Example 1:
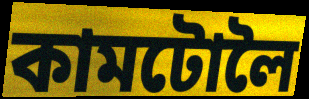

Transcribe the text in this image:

কামটোলৈ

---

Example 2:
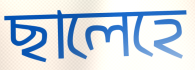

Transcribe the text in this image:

ছালেহে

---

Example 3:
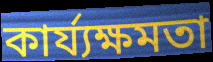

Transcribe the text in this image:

কাৰ্য্যক্ষমতা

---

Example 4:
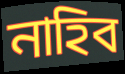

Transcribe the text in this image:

নাহিব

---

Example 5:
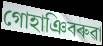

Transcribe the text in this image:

গোহাঞিবৰুৱা